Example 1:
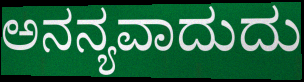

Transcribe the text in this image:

ಅನನ್ಯವಾದುದು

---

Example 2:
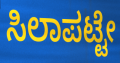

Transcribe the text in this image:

ಸಿಲಾಪಟ್ಟೇ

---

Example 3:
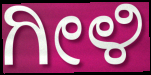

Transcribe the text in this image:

ಗೀಳಿ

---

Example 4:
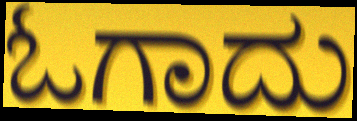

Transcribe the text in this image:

ಓಗಾದು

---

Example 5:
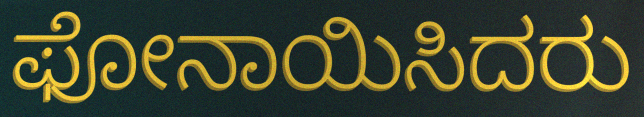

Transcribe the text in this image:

ಫೋನಾಯಿಸಿದರು